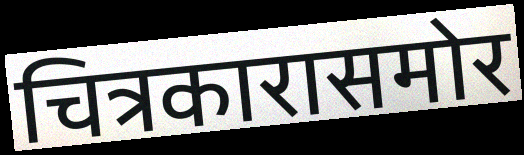
चित्रकारासमोर